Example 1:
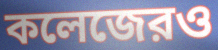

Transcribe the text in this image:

কলেজেরও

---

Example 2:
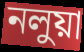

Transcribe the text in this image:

নলুয়া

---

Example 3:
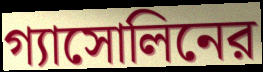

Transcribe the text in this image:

গ্যাসোলিনের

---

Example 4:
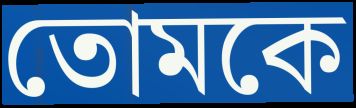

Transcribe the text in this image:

তোমকে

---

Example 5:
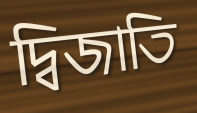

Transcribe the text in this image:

দ্বিজাতি